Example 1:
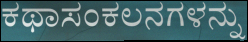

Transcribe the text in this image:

ಕಥಾಸಂಕಲನಗಳನ್ನು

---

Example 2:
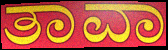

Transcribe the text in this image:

ತಾವಾ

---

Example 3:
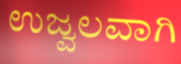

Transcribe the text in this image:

ಉಜ್ವಲವಾಗಿ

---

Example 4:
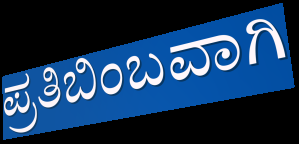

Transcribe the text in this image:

ಪ್ರತಿಬಿಂಬವಾಗಿ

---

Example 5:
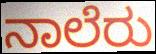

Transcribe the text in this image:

ನಾಲೆರು